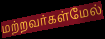
மற்றவர்கள்மேல்